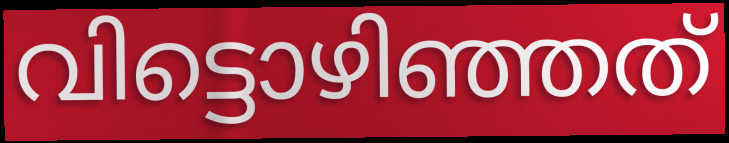
വിട്ടൊഴിഞ്ഞത്